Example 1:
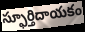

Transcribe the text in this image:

స్ఫూర్తిదాయకం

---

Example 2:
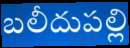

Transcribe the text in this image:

బలీదుపల్లి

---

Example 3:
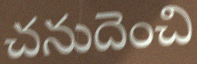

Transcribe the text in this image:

చనుదెంచి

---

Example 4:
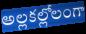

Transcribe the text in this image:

అల్లకల్లోలంగా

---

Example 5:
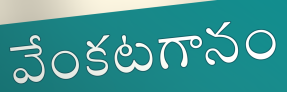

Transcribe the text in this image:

వేంకటగానం